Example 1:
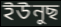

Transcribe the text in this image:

ইউনুছ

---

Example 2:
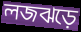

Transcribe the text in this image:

লজঝড়ে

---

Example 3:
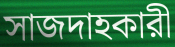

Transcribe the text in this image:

সাজদাহকারী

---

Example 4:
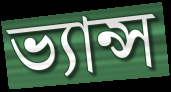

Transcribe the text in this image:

ভ্যান্স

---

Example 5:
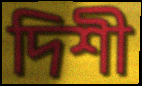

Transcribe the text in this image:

দিশী